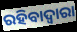
ରହିବାଦ୍ଵାରା